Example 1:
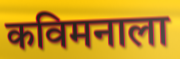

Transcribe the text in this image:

कविमनाला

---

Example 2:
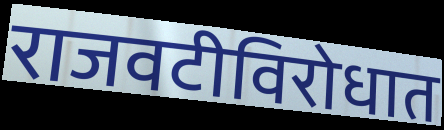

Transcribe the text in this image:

राजवटीविरोधात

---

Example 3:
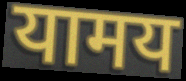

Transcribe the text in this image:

यामय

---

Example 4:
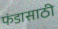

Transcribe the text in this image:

फंडासाठी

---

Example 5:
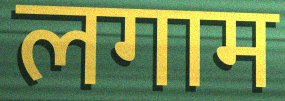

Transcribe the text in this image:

लगाम